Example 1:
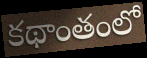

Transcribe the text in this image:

కథాంతంలో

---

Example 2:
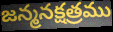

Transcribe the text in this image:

జన్మనక్షత్రము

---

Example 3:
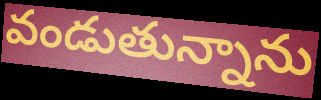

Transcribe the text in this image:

వండుతున్నాను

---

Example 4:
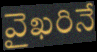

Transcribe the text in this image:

వైఖరినే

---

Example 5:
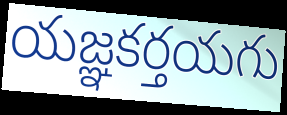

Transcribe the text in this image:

యజ్ఞకర్తయగు